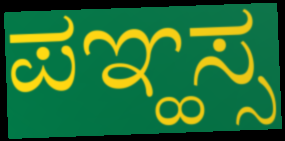
ಪಞ್ಹಸ್ಸ